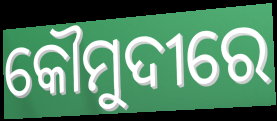
କୌମୁଦୀରେ